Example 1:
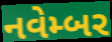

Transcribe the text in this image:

નવેમ્બર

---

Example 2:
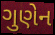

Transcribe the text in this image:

ગુણેન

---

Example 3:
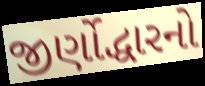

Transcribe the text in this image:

જીર્ણોદ્ધારનો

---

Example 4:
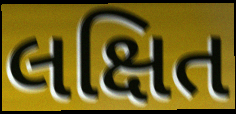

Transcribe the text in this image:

લક્ષિત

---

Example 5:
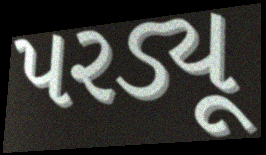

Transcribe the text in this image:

પરડ્યૂ